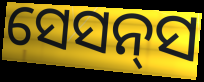
ସେସନ୍‌ସ